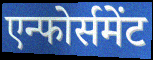
एन्फोर्समेंट